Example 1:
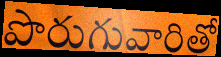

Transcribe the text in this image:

పొరుగువారితో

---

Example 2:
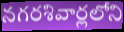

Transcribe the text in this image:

నగరశివార్లలోని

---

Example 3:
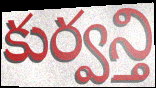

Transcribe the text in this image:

కుర్వన్తి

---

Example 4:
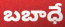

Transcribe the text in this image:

బబాధే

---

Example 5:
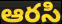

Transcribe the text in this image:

ఆరసి